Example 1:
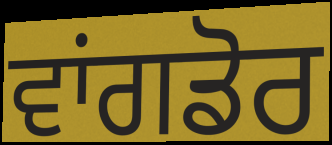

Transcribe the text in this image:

ਵਾਂਗਡੋਰ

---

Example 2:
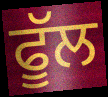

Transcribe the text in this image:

ਫੂੱਲ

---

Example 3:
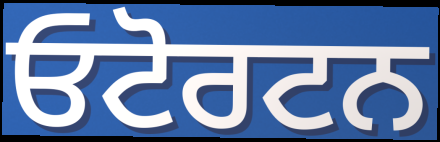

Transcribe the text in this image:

ਓਟੋਰਟਨ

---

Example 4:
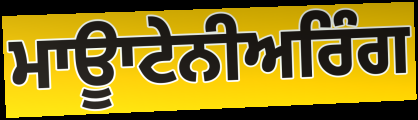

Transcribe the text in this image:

ਮਾਊਾਟੇਨੀਅਰਿੰਗ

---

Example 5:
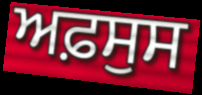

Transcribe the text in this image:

ਅਫ਼ਸੁਸ